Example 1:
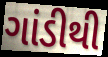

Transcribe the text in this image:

ગાંડીથી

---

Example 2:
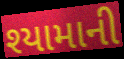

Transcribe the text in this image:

શ્યામાની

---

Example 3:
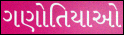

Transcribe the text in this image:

ગણોતિયાઓ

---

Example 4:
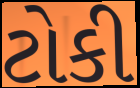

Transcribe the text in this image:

ટોકી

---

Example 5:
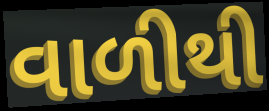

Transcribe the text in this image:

વાળીથી